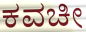
ಕವಚೀ